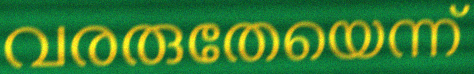
വരരുതേയെന്ന്